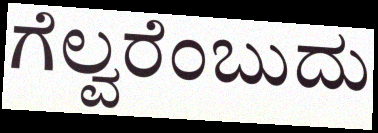
ಗೆಲ್ವರೆಂಬುದು